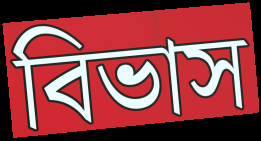
বিভাস